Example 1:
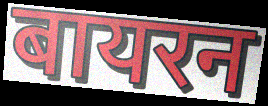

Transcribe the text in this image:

बायरन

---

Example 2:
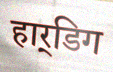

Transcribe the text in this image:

हार्डिग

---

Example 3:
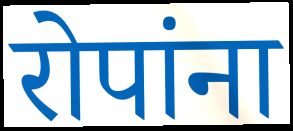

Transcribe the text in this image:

रोपांना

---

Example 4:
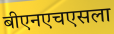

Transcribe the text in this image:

बीएनएचएसला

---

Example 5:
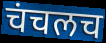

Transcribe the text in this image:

चंचलच